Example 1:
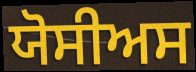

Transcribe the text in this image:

ਯੋਸੀਅਸ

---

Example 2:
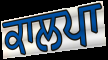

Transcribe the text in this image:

ਕਾਲਪਾ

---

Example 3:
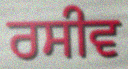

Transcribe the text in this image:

ਰਸੀਵ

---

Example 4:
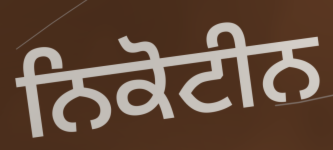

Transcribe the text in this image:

ਨਿਕੋਟੀਨ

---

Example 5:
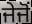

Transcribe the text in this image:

ਜੇਜੋਂ